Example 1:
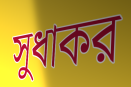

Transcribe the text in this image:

সুধাকর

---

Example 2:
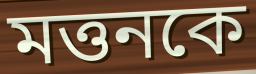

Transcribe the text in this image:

মত্তনকে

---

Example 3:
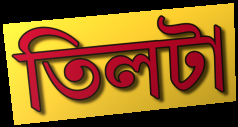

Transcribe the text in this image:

তিলটা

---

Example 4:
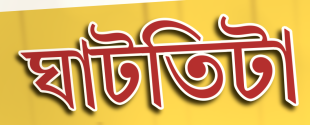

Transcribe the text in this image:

ঘাটতিটা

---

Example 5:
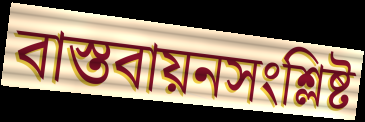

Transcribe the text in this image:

বাস্তবায়নসংশ্লিষ্ট